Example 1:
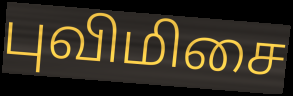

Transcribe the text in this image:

புவிமிசை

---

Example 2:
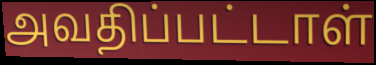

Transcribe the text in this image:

அவதிப்பட்டாள்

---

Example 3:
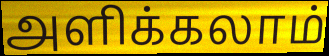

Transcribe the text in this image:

அளிக்கலாம்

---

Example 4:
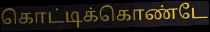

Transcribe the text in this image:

கொட்டிக்கொண்டே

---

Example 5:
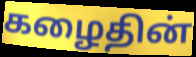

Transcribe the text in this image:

கழைதின்